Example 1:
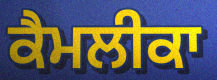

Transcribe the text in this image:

ਕੈਮਲੀਕਾ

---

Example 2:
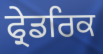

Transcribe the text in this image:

ਫ੍ਰੇਡਰਿਕ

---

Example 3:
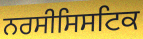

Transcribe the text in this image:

ਨਰਸੀਸਿਸਟਿਕ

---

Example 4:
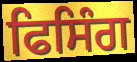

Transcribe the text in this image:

ਫਿਸਿੰਗ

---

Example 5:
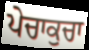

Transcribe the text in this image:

ਪੇਚਾਕੁਚਾ